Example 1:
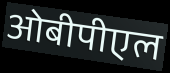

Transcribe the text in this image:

ओबीपीएल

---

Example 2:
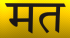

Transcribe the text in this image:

मत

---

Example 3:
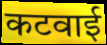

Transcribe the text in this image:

कटवाई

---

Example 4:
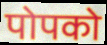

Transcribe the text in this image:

पोपको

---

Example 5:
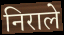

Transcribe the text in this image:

निराले